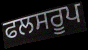
ਫਲਸਰੂਪ